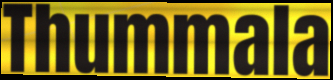
Thummala